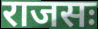
राजसः